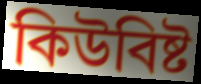
কিউবিষ্ট